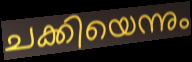
ചക്കിയെന്നും